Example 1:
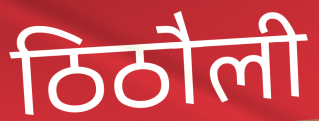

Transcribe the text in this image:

ठिठौली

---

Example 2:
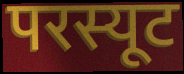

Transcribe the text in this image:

परस्यूट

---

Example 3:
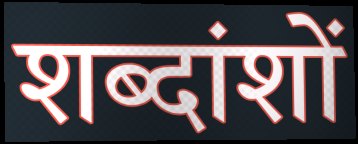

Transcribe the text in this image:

शब्दांशों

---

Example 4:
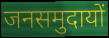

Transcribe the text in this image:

जनसमुदायों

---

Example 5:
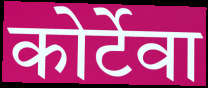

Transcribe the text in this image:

कोर्टेवा